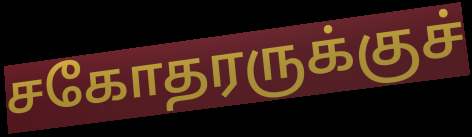
சகோதரருக்குச்